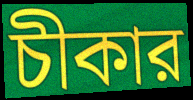
চীকার